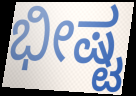
ಭೀಷ್ಟ